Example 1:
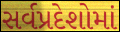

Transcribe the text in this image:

સર્વપ્રદેશોમાં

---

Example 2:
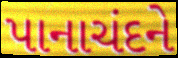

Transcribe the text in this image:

પાનાચંદને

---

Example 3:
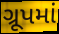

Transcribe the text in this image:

ગ્રૂપમાં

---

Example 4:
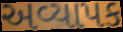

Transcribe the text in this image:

અવ્યાપક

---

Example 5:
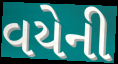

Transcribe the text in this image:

વયેની